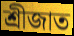
শ্রীজাত